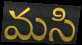
మసి